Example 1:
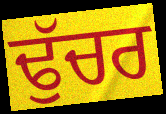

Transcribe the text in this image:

ਢੁੱਚਰ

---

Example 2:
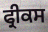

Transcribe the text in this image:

ਫ੍ਰੀਕਸ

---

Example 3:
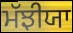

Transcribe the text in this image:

ਮੱਝੀਯਾ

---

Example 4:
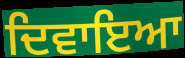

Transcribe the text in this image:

ਦਿਵਾਇਆ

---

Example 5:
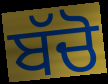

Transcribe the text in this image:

ਬੱਚੋ